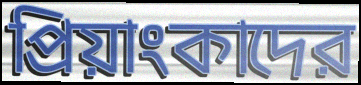
প্রিয়াংকাদের